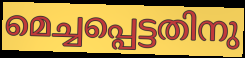
മെച്ചപ്പെട്ടതിനു